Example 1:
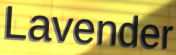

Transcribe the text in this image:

Lavender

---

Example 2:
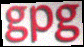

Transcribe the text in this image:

gpg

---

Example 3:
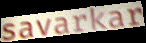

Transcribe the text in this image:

savarkar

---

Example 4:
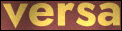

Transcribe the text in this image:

versa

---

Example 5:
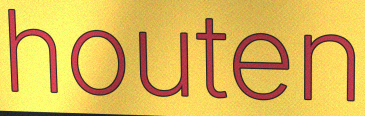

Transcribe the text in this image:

houten